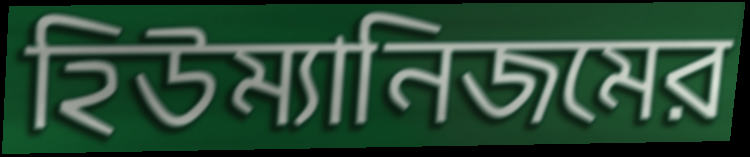
হিউম্যানিজমের